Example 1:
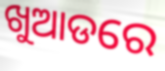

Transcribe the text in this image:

ଖୁଆଡରେ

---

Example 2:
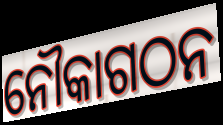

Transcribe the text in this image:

ନୌକାଗଠନ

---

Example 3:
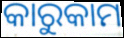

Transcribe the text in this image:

କାରୁକାମ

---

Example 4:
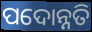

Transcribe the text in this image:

ପଦୋନ୍ନତି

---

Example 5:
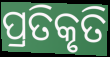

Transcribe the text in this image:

ପ୍ରତିକୃତି